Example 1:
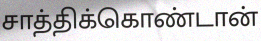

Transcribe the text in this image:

சாத்திக்கொண்டான்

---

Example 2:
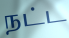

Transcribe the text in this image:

நட்ட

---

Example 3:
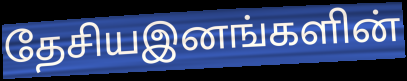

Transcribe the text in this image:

தேசியஇனங்களின்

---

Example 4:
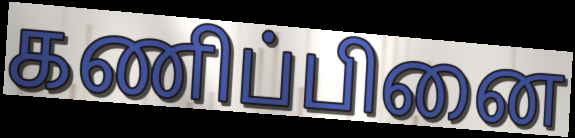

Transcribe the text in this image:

கணிப்பினை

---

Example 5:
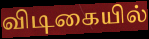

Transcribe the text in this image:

விடிகையில்